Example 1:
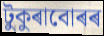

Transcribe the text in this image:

টুকুৰাবোৰৰ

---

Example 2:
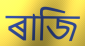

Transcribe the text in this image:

ৰাজি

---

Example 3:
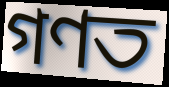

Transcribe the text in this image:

গণত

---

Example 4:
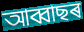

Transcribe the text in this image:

আব্বাছৰ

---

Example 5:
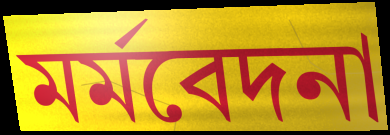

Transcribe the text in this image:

মৰ্মবেদনা